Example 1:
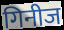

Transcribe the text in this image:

गिनीज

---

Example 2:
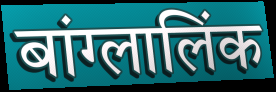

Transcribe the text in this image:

बांग्लालिंक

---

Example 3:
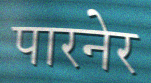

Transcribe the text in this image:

पारनेर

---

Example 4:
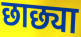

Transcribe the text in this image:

छाछ्या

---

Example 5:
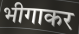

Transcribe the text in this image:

भीगाकर